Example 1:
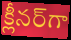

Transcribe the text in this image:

క్లీనర్‌గా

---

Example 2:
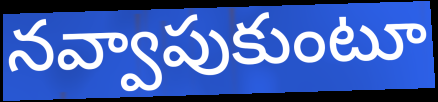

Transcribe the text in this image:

నవ్వాపుకుంటూ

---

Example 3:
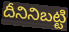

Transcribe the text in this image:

దీనినిబట్టి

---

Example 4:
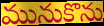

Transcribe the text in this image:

మునుకొను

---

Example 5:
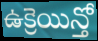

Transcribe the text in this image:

ఉక్రెయిన్తో